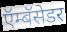
ऍम्बॅसेडर